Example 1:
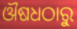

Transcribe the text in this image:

ଔଷଧଠାରୁ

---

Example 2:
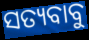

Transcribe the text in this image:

ସତ୍ୟବାବୁ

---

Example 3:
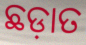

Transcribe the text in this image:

ଛଡ଼ାତ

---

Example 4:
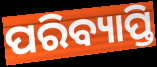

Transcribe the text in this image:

ପରିବ୍ୟାପ୍ତି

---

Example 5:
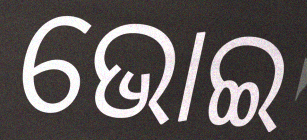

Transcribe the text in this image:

ଭୋଇ